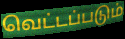
வெட்டப்படும்